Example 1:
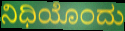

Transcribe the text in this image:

ನಿಧಿಯೊಂದು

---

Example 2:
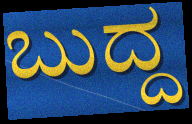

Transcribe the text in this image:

ಬುದ್ದ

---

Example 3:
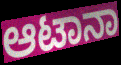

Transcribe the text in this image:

ಆಟಾನಾ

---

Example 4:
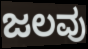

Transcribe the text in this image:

ಜಲವು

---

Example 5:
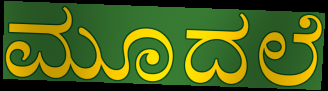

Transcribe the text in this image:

ಮೂದಲೆ